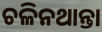
ଚଳିନଥାନ୍ତା